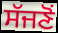
ਸੱਜਣੋਂ